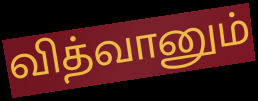
வித்வானும்